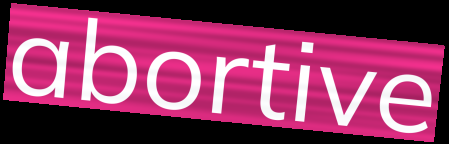
abortive